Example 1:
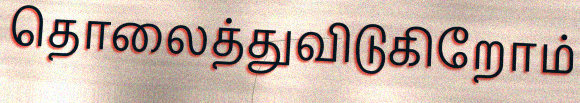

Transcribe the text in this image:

தொலைத்துவிடுகிறோம்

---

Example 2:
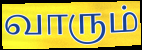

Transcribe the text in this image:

வாரும்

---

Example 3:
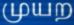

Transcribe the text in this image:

முயற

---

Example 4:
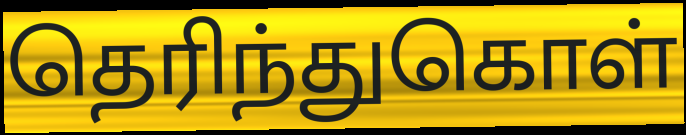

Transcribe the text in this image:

தெரிந்துகொள்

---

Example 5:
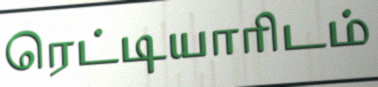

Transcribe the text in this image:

ரெட்டியாரிடம்